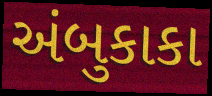
અંબુકાકા